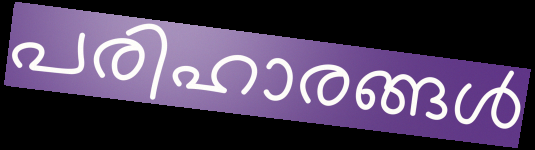
പരിഹാരങ്ങൾ